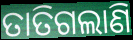
ତାତିଗଲାଣି